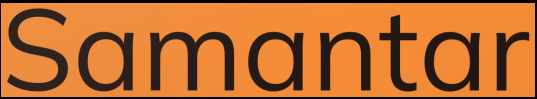
Samantar